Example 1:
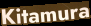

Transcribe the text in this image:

Kitamura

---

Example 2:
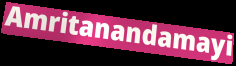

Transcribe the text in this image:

Amritanandamayi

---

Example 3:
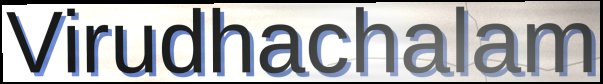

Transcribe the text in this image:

Virudhachalam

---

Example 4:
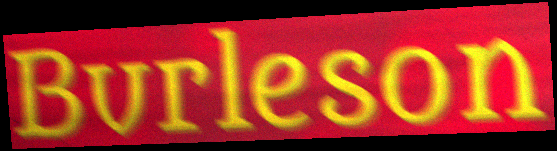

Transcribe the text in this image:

Burleson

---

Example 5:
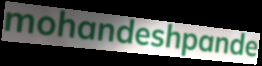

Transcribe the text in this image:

mohandeshpande